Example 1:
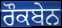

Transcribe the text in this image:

ਰੌਕਬੇਨ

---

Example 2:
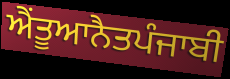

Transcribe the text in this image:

ਐਂਤੂਆਨੈਤਪੰਜਾਬੀ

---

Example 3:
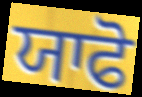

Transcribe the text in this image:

ਯਾਫੋ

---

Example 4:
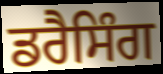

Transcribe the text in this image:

ਡਰੈਸਿੰਗ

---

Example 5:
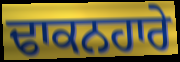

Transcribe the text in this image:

ਢਾਕਨਹਾਰੇ